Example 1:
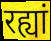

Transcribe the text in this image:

रह्यां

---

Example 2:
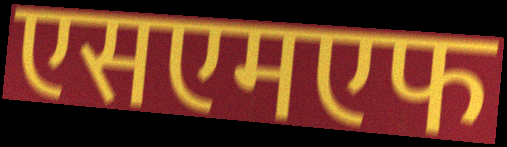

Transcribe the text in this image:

एसएमएफ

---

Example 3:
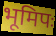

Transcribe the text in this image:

भूमिपः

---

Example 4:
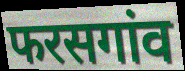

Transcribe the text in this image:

फरसगांव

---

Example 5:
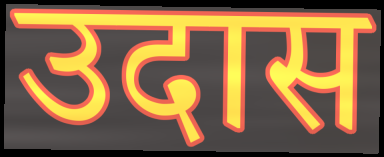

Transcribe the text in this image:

उदास